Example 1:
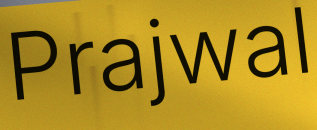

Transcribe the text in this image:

Prajwal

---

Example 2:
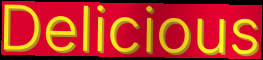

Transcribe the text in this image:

Delicious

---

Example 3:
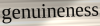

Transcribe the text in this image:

genuineness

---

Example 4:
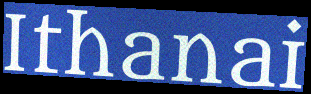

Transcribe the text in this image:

Ithanai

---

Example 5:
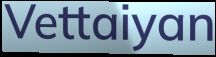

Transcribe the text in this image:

Vettaiyan